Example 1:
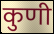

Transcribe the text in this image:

कुणी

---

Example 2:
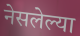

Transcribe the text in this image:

नेसलेल्या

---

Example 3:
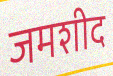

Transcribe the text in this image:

जमशीद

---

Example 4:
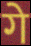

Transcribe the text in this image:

गे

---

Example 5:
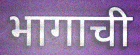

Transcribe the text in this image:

भागाची